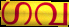
ഗവ